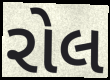
રોલ